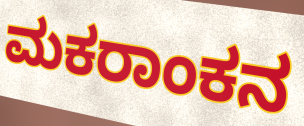
ಮಕರಾಂಕನ